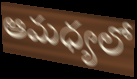
ఆమధ్యలో